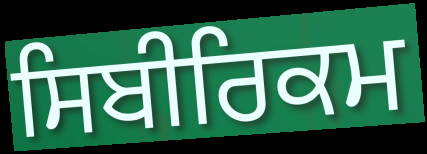
ਸਿਬੀਰਿਕਮ